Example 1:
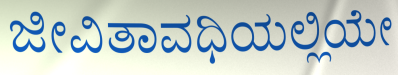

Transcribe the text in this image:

ಜೀವಿತಾವಧಿಯಲ್ಲಿಯೇ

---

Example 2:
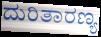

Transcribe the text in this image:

ದುರಿತಾರಣ್ಯ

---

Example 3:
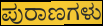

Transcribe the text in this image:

ಪುರಾಣಗಳು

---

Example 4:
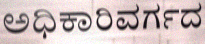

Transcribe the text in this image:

ಅಧಿಕಾರಿವರ್ಗದ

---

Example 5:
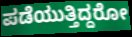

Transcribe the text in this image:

ಪಡೆಯುತ್ತಿದ್ದರೋ